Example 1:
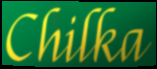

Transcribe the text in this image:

Chilka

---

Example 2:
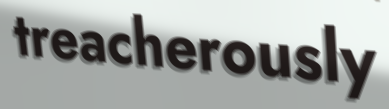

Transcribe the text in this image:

treacherously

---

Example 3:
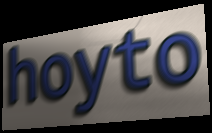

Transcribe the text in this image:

hoyto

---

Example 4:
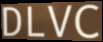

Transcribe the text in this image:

DLVC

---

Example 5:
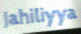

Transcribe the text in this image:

Jahiliyya